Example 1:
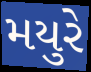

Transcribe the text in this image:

મયુરે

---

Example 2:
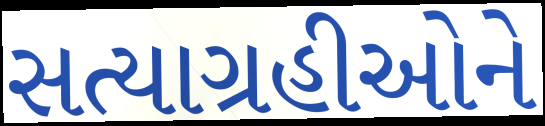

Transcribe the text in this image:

સત્યાગ્રહીઓને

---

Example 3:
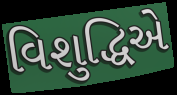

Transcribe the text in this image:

વિશુદ્ધિએ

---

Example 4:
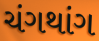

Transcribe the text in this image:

ચંગથાંગ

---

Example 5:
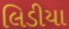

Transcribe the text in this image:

લિડીયા